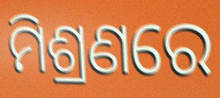
ମିଶ୍ରଣରେ